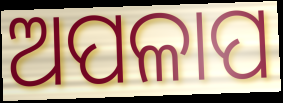
ଅପଳାପ